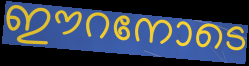
ഈറനോടെ